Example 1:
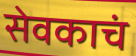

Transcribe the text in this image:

सेवकाचं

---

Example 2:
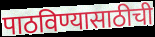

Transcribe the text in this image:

पाठविण्यासाठीची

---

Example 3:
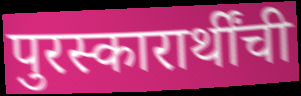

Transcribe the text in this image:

पुरस्कारार्थींची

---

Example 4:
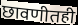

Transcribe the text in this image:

छावणीतही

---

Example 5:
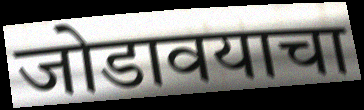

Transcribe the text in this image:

जोडावयाचा